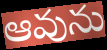
ఆవును